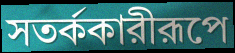
সতর্ককারীরূপে